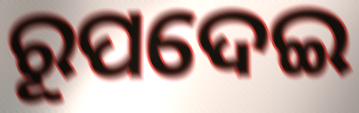
ରୂପଦେଇ